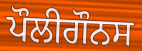
ਪੌਲੀਗੌਨਸ